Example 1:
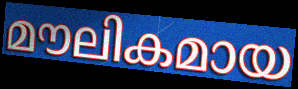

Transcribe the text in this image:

മൗലികമായ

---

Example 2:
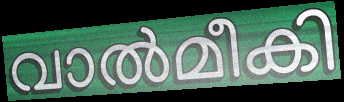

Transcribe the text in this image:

വാൽമീകി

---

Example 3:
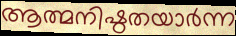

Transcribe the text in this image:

ആത്മനിഷ്ഠതയാർന്ന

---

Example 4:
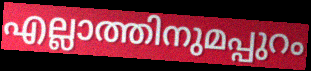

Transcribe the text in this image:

എല്ലാത്തിനുമപ്പുറം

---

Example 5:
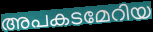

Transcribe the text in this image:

അപകടമേറിയ